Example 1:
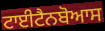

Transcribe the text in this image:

ਟਾਈਟੈਨਬੋਆਸ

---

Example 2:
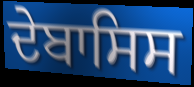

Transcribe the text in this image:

ਦੇਬਾਸਿਸ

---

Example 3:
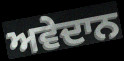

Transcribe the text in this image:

ਅਵੇਦਾਨ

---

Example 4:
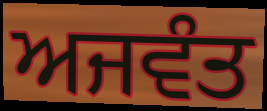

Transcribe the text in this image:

ਅਜਵੰਤ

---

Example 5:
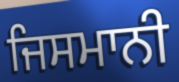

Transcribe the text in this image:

ਜਿਸਮਾਨੀ